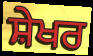
ਸ਼ੇਖਰ